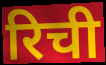
रिची